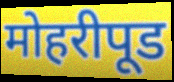
मोहरीपूड